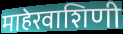
माहेरवाशिणी